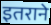
इतराने